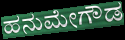
ಹನುಮೇಗೌಡ